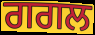
ਗਗਲ